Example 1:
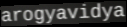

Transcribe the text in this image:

arogyavidya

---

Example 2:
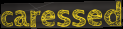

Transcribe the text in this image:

caressed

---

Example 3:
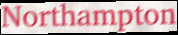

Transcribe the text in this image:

Northampton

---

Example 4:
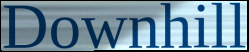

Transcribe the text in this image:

Downhill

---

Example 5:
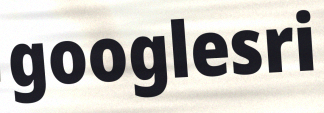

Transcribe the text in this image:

googlesri